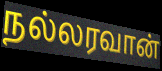
நல்லரவான்